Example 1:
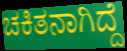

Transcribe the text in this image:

ಚಕಿತನಾಗಿದ್ದೆ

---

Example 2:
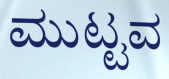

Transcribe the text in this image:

ಮುಟ್ಟವ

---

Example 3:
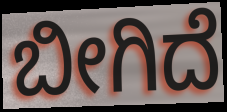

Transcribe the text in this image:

ಬೀಗಿದೆ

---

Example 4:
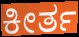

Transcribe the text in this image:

ಕೀರ್ತ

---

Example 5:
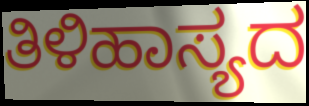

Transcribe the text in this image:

ತಿಳಿಹಾಸ್ಯದ